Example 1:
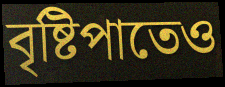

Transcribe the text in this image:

বৃষ্টিপাতেও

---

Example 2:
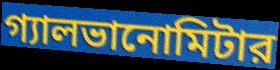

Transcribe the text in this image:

গ্যালভানোমিটার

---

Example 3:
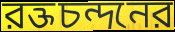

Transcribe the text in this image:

রক্তচন্দনের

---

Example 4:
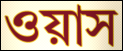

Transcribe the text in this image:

ওয়াস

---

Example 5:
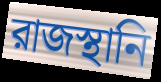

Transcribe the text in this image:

রাজস্থানি